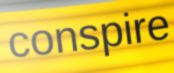
conspire